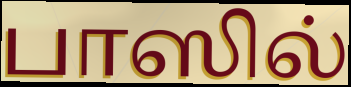
பாஸில்